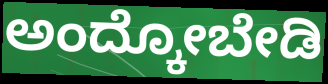
ಅಂದ್ಕೋಬೇಡಿ